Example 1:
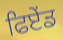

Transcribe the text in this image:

ਫਿਏਂਡ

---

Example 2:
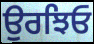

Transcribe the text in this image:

ਉਰਝਿਓ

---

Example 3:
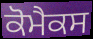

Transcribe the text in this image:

ਕੋਮੈਕਸ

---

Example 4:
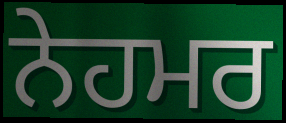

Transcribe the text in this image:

ਨੇਹਮਰ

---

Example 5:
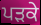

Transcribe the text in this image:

ਪੜਕੇ